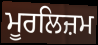
ਮੂਰਲਿਜ਼ਮ